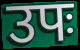
उपः